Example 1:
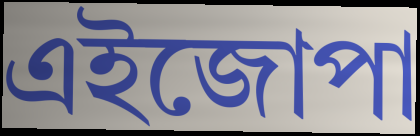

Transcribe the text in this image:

এইজোপা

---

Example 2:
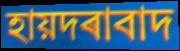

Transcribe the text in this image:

হায়দৰাবাদ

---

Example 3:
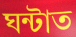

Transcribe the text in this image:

ঘন্টাত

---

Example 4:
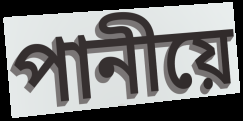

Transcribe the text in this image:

পানীয়ে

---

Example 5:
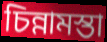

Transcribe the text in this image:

চিন্নামস্তা